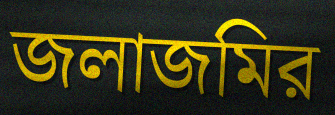
জলাজমির